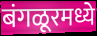
बंगळूरमध्ये